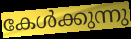
കേൾക്കുന്നു